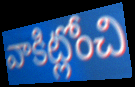
వాకిట్లోంచి